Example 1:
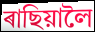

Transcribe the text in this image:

ৰাছিয়ালৈ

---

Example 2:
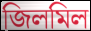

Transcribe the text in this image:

জিলমিল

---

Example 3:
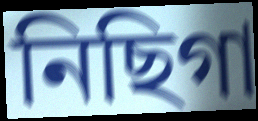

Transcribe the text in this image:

নিছিগা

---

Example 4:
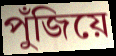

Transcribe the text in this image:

পুঁজিয়ে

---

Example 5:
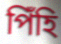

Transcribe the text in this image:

পিঁহি